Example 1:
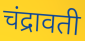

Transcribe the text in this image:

चंद्रावती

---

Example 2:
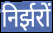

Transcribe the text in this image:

निर्झरों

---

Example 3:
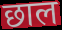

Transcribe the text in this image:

छाल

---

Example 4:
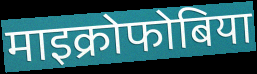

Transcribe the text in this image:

माइक्रोफोबिया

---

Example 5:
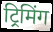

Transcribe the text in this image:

ट्रिमिंग